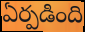
ఏర్పడింది